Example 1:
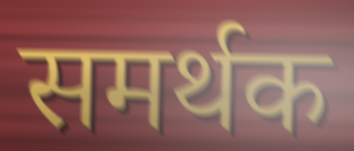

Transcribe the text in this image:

समर्थक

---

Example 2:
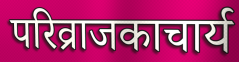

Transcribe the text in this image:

परिव्राजकाचार्य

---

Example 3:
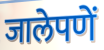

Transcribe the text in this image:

जालेपणें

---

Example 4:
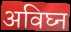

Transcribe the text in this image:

अविघ्न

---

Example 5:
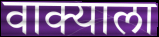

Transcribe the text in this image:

वाक्याला